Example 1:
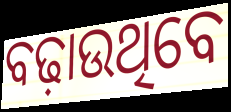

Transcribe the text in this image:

ବଢ଼ାଉଥିବେ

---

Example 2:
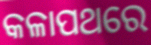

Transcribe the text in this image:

କଳାପଥରେ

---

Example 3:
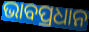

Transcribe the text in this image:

ଭାବପ୍ରଧାନ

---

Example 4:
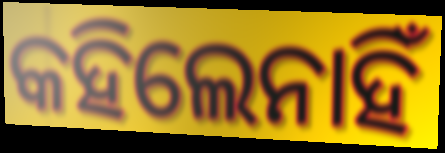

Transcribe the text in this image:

କହିଲେନାହିଁ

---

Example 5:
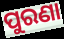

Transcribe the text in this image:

ପୁରଣା